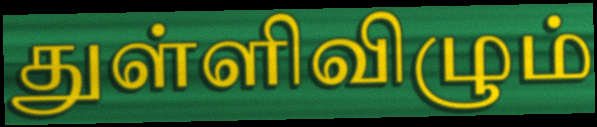
துள்ளிவிழும்